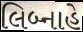
લિબ્નાહે